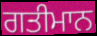
ਗਤੀਮਾਨ